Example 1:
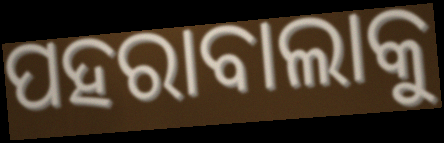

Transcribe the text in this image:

ପହରାବାଲାକୁ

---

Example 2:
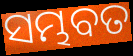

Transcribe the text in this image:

ସମ୍ଭବତ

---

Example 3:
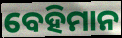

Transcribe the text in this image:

ବେହିମାନ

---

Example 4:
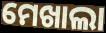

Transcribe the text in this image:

ମେଖାଲା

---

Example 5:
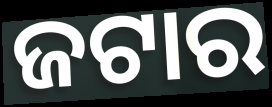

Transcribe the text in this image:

ଜଟାର